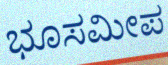
ಭೂಸಮೀಪ